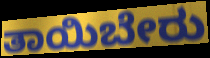
ತಾಯಿಬೇರು